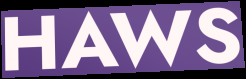
HAWS